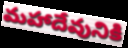
మహాదేవునికి